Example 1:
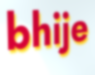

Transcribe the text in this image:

bhije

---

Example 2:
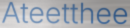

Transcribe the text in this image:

Ateetthee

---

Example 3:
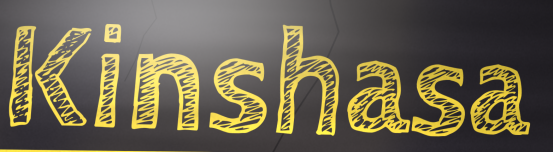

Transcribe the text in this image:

Kinshasa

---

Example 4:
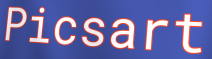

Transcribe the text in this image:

Picsart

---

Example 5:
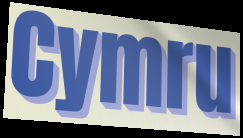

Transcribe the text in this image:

Cymru